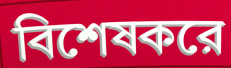
বিশেষকরে